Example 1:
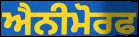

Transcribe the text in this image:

ਐਨੀਮੋਰਫ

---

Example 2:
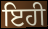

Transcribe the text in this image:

ਇਹੀ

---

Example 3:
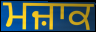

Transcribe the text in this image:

ਮਜ਼ਾਕ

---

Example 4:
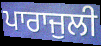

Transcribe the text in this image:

ਪਾਰਾਜੁਲੀ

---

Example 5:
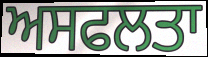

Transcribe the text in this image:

ਅਸਫਲਤਾ